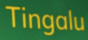
Tingalu